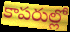
కాపరుల్లో